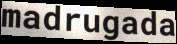
madrugada